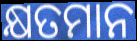
କ୍ଷତମାନ